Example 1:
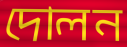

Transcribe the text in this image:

দোলন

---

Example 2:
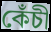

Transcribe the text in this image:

কেঁচী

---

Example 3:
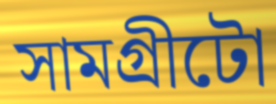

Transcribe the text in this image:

সামগ্ৰীটো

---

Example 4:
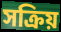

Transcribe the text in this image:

সক্ৰিয়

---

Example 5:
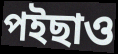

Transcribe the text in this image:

পইছাও